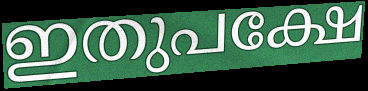
ഇതുപക്ഷേ